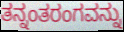
ತನ್ನಂತರಂಗವನ್ನು